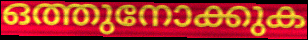
ഒത്തുനോക്കുക